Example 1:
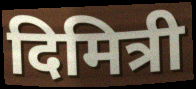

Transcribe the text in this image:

दिमित्री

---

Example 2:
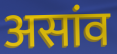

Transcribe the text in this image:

असांव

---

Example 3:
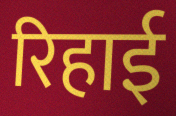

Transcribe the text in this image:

रिहाई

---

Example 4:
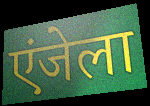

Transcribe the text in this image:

एंजेला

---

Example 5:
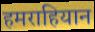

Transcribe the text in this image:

हमराहियान